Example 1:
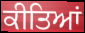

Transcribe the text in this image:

ਕੀਤਿਆਂ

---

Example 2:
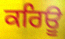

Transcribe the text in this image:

ਕਰਿਊ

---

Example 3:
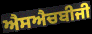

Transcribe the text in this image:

ਐਸਐਚਬੀਜੀ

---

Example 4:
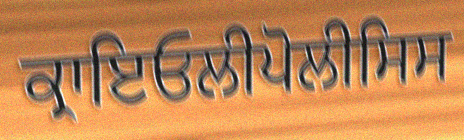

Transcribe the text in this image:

ਕ੍ਰਾਇਓਲੀਪੋਲੀਸਿਸ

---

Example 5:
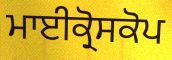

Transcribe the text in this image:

ਮਾਈਕ੍ਰੋਸਕੋਪ